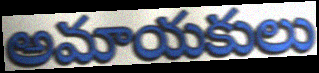
అమాయకులు